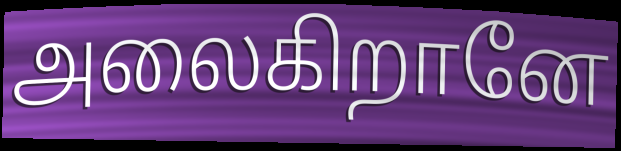
அலைகிறானே